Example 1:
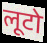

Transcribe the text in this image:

लूटो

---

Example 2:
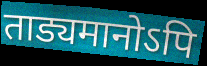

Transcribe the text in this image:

ताड्यमानोऽपि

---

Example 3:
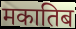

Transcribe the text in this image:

मकातिब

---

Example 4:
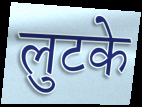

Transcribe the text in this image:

लुटके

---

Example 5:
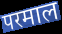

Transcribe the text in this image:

परमाल